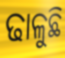
ଢାଳୁଛି